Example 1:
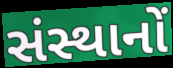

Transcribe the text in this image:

સંસ્થાનોં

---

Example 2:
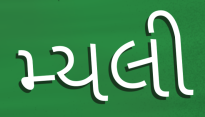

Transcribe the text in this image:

મ્યલી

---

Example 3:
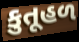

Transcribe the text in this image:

કુતૂહળ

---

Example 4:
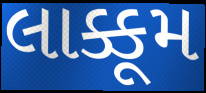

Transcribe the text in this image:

લાક્કૂમ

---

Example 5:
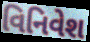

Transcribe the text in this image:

વિનિવેશ